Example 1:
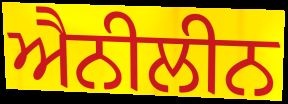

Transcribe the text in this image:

ਐਨੀਲੀਨ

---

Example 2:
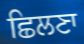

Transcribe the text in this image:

ਛਿਲਣਾ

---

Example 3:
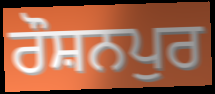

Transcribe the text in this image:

ਰੌਸ਼ਨਪੁਰ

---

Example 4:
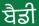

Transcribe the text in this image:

ਬੈਡੀ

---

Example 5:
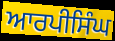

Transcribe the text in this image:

ਆਰਪੀਸਿੰਘ